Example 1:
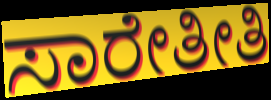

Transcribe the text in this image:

ಸಾರೇತೀತಿ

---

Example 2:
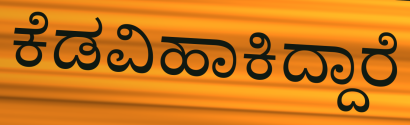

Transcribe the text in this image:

ಕೆಡವಿಹಾಕಿದ್ದಾರೆ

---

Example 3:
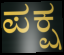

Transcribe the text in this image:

ಪಕ್ಷ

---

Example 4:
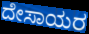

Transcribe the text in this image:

ದೇಸಾಯರ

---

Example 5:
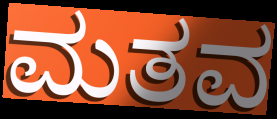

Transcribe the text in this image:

ಮತವ